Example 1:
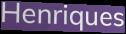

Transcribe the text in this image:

Henriques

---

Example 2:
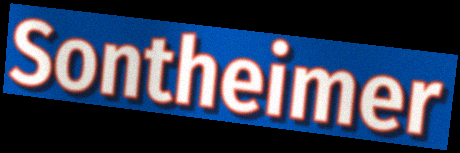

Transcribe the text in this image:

Sontheimer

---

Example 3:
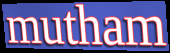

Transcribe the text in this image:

mutham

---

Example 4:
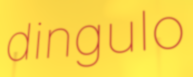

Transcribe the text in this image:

dingulo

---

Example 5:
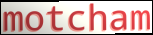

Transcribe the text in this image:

motcham